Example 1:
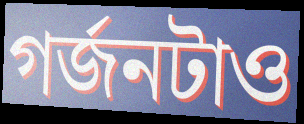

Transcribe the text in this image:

গর্জনটাও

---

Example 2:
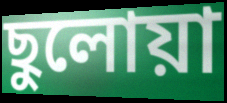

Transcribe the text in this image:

ছুলোয়া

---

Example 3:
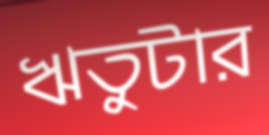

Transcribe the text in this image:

ঋতুটার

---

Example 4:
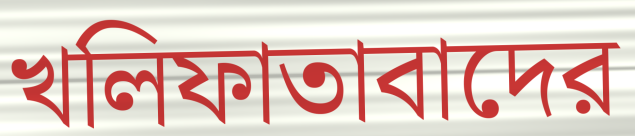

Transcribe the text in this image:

খলিফাতাবাদের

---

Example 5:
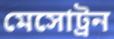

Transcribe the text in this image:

মেসোট্রন